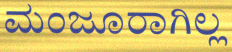
ಮಂಜೂರಾಗಿಲ್ಲ